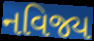
નવિજ્ય